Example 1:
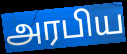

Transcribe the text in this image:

அரபிய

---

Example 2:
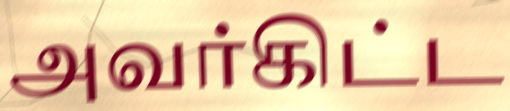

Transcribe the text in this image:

அவர்கிட்ட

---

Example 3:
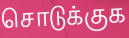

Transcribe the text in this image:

சொடுக்குக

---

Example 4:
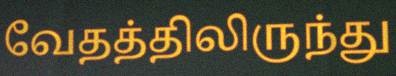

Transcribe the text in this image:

வேதத்திலிருந்து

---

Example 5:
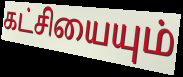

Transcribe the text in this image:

கட்சியையும்